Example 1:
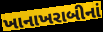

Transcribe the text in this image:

ખાનાખરાબીનાં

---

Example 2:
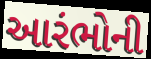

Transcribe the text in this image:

આરંભોની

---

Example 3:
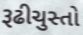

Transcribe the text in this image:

રૂઢીચુસ્તો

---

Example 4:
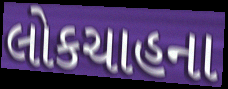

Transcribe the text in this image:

લોકચાહના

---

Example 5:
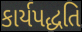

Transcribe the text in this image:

કાર્યપદ્ધતિ